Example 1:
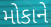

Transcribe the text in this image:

મોકાને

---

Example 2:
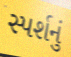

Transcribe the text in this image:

સ્પર્શનું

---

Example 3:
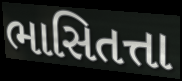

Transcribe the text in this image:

ભાસિતત્તા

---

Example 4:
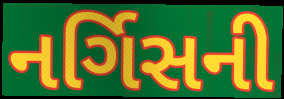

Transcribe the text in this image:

નર્ગિસની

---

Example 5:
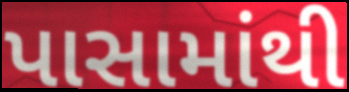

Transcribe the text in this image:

પાસામાંથી